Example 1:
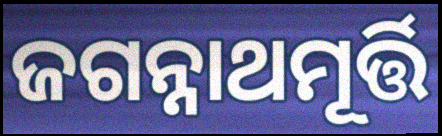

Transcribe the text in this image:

ଜଗନ୍ନାଥମୂର୍ତ୍ତି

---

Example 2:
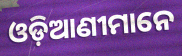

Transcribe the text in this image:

ଓଡ଼ିଆଣୀମାନେ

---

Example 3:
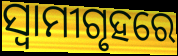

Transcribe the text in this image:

ସ୍ଵାମୀଗୃହରେ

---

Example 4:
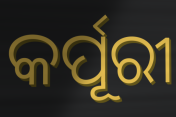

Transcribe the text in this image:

କର୍ପୂରୀ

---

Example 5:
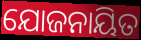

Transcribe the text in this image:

ଯୋଜନାୟିତ